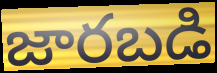
జారబడి